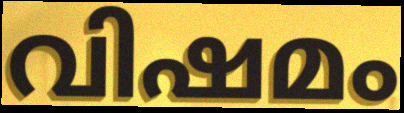
വിഷമം